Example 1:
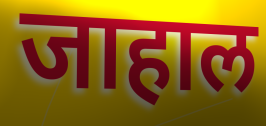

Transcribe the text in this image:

जाहाल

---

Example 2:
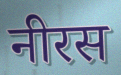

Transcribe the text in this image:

नीरस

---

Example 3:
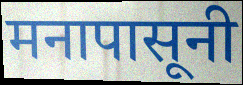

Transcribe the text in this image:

मनापासूनी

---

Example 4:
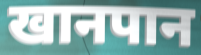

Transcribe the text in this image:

खानपान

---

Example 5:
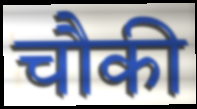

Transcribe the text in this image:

चौकी